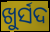
ଖୁର୍ସଦ